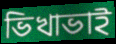
ভিখাভাই